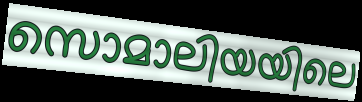
സൊമാലിയയിലെ